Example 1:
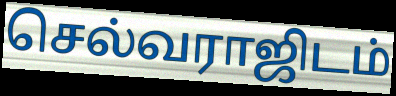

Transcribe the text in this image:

செல்வராஜிடம்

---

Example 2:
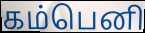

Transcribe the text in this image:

கம்பெனி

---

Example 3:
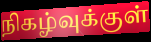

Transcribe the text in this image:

நிகழ்வுக்குள்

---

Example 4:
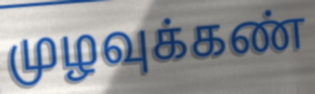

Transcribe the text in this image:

முழவுக்கண்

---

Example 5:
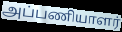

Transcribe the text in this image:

அப்பணியாளர்